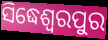
ସିଦ୍ଧେଶ୍ଵରପୁର